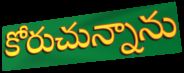
కోరుచున్నాను